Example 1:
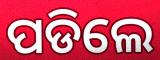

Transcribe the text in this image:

ପଡିଲେ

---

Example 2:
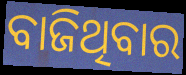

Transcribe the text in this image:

ବାଜିଥିବାର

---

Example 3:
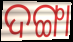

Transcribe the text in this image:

ଦଙ୍ଗା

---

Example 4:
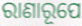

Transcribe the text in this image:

ରାଣାରୂପେ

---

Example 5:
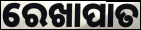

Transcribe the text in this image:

ରେଖାପାତ